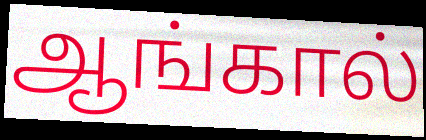
ஆங்கால்